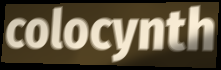
colocynth